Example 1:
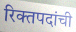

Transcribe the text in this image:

रिक्तपदांची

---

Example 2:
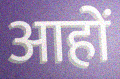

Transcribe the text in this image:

आहों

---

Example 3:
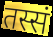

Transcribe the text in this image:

तस्सं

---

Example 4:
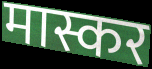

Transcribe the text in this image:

मास्कर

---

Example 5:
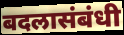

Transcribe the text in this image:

बदलासंबंधी